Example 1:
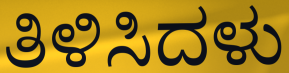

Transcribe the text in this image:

ತಿಳಿಸಿದಳು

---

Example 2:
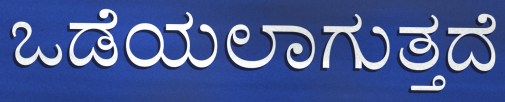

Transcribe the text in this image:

ಒಡೆಯಲಾಗುತ್ತದೆ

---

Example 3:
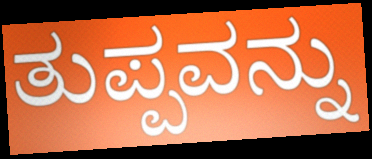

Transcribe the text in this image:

ತುಪ್ಪವನ್ನು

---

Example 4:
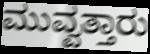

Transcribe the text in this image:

ಮುವ್ವತ್ತಾರು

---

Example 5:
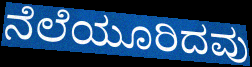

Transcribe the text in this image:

ನೆಲೆಯೂರಿದವು